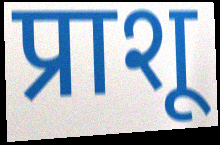
प्राशू